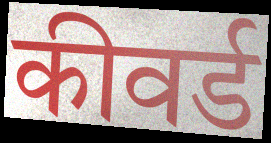
कीवर्ड